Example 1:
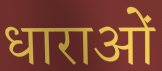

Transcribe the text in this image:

धाराओं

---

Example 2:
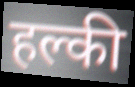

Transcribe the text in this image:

हल्की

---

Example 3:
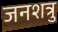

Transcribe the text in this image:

जनशत्रु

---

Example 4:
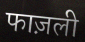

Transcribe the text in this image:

फाज़ली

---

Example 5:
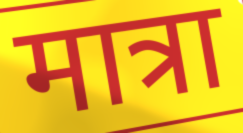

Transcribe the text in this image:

मात्रा